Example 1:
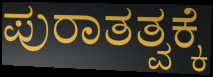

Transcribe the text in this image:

ಪುರಾತತ್ವಕ್ಕೆ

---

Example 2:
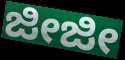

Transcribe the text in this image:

ಜೀಜೀ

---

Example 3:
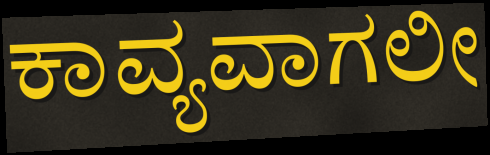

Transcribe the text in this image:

ಕಾವ್ಯವಾಗಲೀ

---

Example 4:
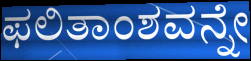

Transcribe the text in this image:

ಫಲಿತಾಂಶವನ್ನೇ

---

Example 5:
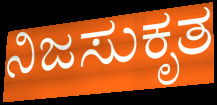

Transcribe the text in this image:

ನಿಜಸುಕೃತ